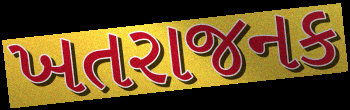
ખતરાજનક